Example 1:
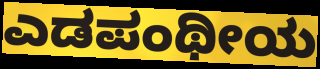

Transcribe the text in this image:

ಎಡಪಂಥೀಯ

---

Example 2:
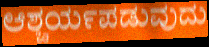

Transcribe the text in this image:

ಆಶ್ಚರ್ಯಪಡುವುದು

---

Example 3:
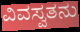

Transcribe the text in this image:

ವಿವಸ್ವತನು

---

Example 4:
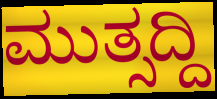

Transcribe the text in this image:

ಮುತ್ಸದ್ದಿ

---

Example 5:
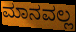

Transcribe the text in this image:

ಮಾನವಲ್ಲ